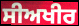
ਸੀਅਖੀਰ